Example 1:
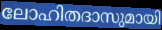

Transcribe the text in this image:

ലോഹിതദാസുമായി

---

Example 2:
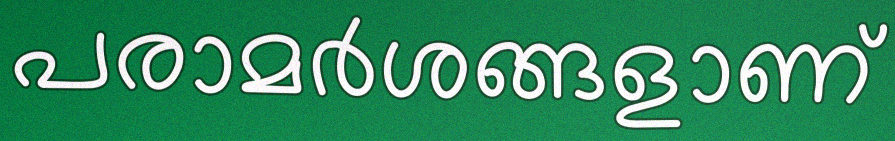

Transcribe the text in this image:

പരാമർശങ്ങളാണ്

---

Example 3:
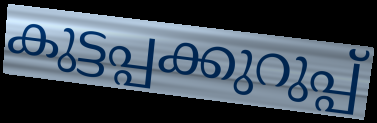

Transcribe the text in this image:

കുട്ടപ്പക്കുറുപ്പ്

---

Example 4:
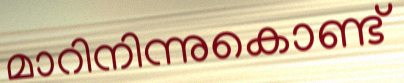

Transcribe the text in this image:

മാറിനിന്നുകൊണ്ട്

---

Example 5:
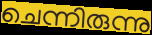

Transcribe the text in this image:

ചെന്നിരുന്നു